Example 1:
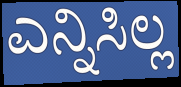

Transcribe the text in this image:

ಎನ್ನಿಸಿಲ್ಲ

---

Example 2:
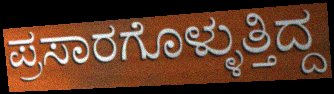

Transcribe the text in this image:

ಪ್ರಸಾರಗೊಳ್ಳುತ್ತಿದ್ದ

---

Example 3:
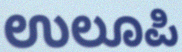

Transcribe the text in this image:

ಉಲೂಪಿ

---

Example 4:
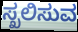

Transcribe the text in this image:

ಸ್ಖಲಿಸುವ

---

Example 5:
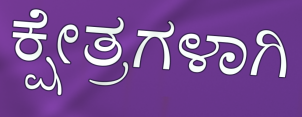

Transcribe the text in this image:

ಕ್ಷೇತ್ರಗಳಾಗಿ